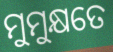
ମୁମୁକ୍ଷତେ